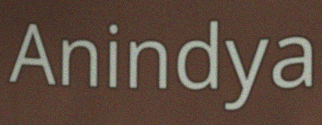
Anindya